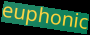
euphonic